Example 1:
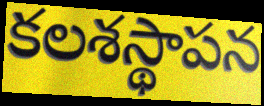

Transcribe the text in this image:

కలశస్థాపన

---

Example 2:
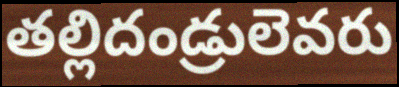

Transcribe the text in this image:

తల్లిదండ్రులెవరు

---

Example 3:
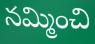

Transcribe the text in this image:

నమ్మించి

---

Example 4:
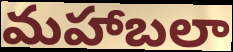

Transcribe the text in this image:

మహాబలా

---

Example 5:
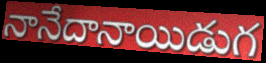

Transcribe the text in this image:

నానేదానాయిడుగ